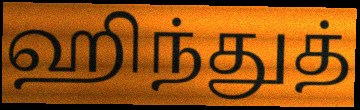
ஹிந்துத்